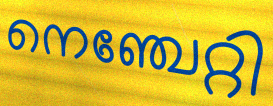
നെഞ്ചേറ്റി